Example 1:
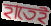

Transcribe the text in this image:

হাতেই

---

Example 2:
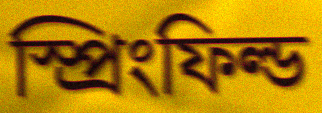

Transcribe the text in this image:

স্প্রিংফিল্ড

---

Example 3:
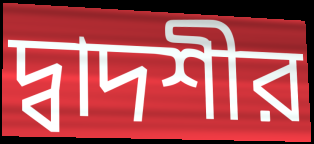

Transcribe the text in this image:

দ্বাদশীর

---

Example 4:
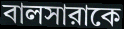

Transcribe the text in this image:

বালসারাকে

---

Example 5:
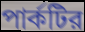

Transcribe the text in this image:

পার্কটির